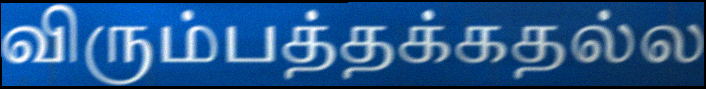
விரும்பத்தக்கதல்ல